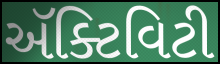
ઍક્ટિવિટી